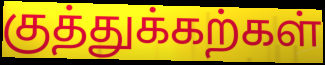
குத்துக்கற்கள்